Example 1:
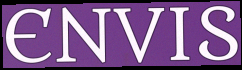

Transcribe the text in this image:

ENVIS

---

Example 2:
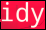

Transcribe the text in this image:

idy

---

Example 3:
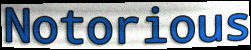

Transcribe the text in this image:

Notorious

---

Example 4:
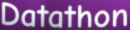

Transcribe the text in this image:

Datathon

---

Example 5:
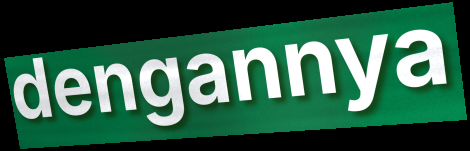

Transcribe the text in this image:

dengannya